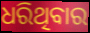
ଧରିଥିବାର